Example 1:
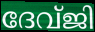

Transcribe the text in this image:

ദേവ്ജി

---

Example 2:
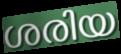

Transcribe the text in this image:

ശരിയ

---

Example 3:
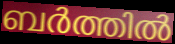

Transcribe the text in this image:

ബർത്തിൽ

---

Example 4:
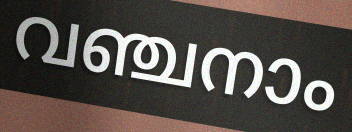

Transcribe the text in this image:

വഞ്ചനാം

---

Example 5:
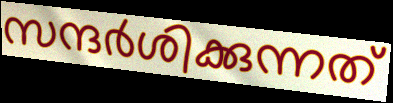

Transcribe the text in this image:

സന്ദർശിക്കുന്നത്